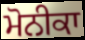
ਮੋਨੀਕਾ